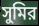
সুমির